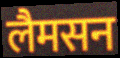
लैमसन